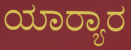
ಯಾರ‍್ಯಾರ